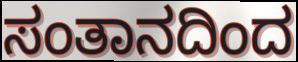
ಸಂತಾನದಿಂದ